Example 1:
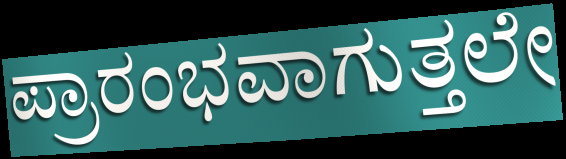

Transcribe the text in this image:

ಪ್ರಾರಂಭವಾಗುತ್ತಲೇ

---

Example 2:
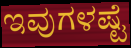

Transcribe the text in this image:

ಇವುಗಳಷ್ಟೆ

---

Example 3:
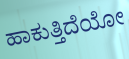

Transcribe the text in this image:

ಹಾಕುತ್ತಿದೆಯೋ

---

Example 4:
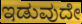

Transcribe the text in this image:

ಇಡುವುದೇ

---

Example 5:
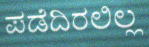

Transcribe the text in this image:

ಪಡೆದಿರಲಿಲ್ಲ